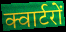
क्वार्टरों